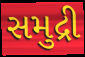
સમુદ્રી